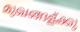
മുഖങ്ങള്ക്കു